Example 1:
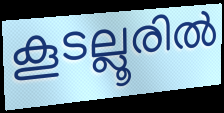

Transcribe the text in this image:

കൂടല്ലൂരിൽ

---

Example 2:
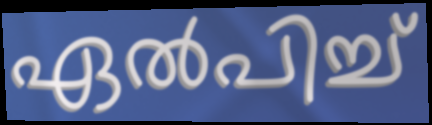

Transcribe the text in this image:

ഏൽപിച്ച്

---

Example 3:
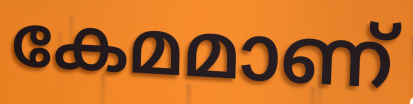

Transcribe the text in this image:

കേമമാണ്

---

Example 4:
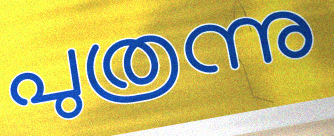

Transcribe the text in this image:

പുത്രന്നു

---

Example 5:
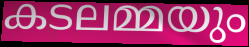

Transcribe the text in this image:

കടലമ്മയും